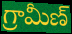
గ్రామీణ్